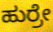
ಹುರ್ರೇ